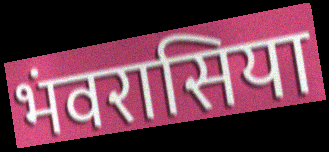
भंवरासिया